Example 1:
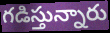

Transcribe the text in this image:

గడిస్తున్నారు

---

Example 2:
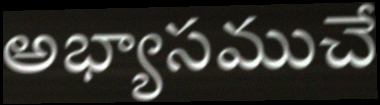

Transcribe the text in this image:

అభ్యాసముచే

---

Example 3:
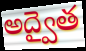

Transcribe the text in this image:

అద్వైత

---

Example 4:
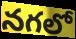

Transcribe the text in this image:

నగలో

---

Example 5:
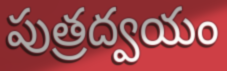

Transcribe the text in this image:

పుత్రద్వయం